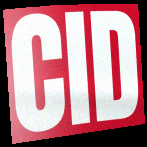
CID